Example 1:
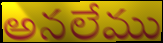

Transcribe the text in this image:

అనలేము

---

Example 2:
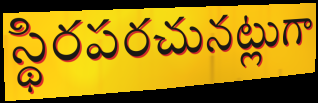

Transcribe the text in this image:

స్థిరపరచునట్లుగా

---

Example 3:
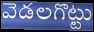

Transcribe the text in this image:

వెడలగొట్టు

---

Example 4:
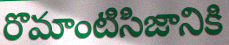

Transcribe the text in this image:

రొమాంటిసిజానికి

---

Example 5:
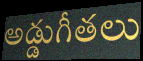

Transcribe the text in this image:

అడ్డుగీతలు